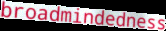
broadmindedness